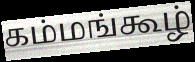
கம்மங்கூழ்